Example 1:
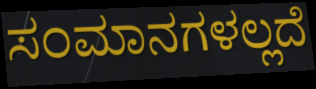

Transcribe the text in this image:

ಸಂಮಾನಗಳಲ್ಲದೆ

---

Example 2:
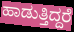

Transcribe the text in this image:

ಹಾಡುತ್ತಿದ್ದರೆ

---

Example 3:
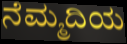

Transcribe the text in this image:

ನೆಮ್ಮದಿಯ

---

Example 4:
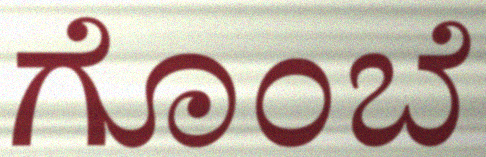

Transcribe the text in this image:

ಗೊಂಬೆ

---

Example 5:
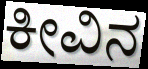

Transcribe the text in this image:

ಕೀವಿನ